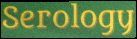
Serology